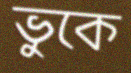
ভুকে